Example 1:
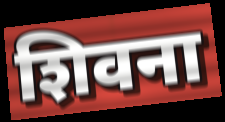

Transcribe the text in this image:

शिवना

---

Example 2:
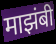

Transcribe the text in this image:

माझंबी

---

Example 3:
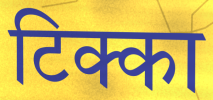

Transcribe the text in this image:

टिक्का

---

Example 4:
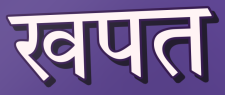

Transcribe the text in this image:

खपत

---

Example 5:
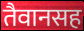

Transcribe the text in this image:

तैवानसह